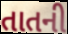
તાતની